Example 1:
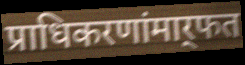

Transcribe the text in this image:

प्राधिकरणांमार्फत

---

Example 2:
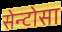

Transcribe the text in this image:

सेन्टोसा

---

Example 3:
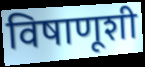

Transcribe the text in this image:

विषाणूशी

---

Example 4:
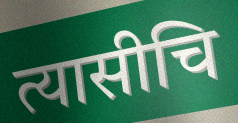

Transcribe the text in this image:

त्यासीचि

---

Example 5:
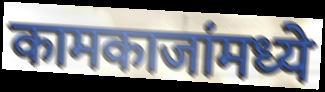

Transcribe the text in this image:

कामकाजांमध्ये